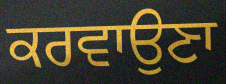
ਕਰਵਾਉਣਾ